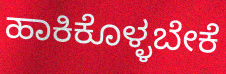
ಹಾಕಿಕೊಳ್ಳಬೇಕೆ